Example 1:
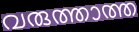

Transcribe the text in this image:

വരുത്താത്ത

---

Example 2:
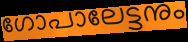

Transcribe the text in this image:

ഗോപാലേട്ടനും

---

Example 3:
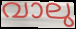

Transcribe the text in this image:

വാലു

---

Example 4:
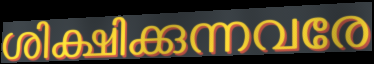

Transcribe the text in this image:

ശിക്ഷിക്കുന്നവരേ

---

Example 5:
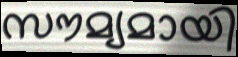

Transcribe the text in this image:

സൗമ്യമായി